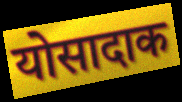
योसादाक